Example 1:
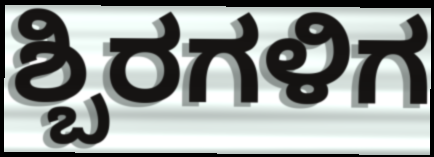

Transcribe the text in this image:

ಶ್ಬಿರಗಳಿಗ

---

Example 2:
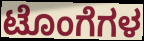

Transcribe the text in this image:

ಟೊಂಗೆಗಳ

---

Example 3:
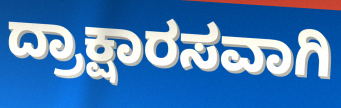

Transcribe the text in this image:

ದ್ರಾಕ್ಷಾರಸವಾಗಿ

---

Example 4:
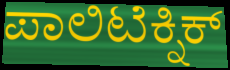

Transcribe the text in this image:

ಪಾಲಿಟೆಕ್ನಿಕ್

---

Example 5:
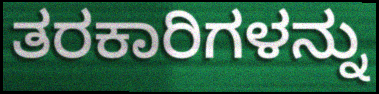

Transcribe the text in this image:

ತರಕಾರಿಗಳನ್ನು